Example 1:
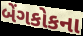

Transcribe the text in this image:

બેંગકોકના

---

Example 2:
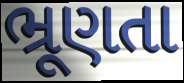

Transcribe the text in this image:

ભ્રૂણતા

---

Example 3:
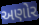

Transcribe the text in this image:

અણોર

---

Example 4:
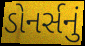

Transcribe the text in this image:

ડોનર્સનું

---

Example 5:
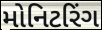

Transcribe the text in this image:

મોનિટરિંગ